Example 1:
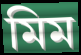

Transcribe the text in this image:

মিম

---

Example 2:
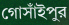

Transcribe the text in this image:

গোসাঁইপুর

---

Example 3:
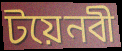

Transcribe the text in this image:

টয়েনবী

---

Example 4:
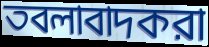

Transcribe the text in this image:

তবলাবাদকরা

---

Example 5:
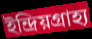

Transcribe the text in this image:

ইন্দ্রিয়গ্রাহ্য